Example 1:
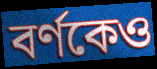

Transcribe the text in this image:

বর্ণকেও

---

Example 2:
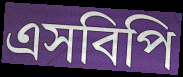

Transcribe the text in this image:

এসবিপি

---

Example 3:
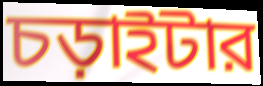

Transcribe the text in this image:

চড়াইটার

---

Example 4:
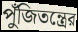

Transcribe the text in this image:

পুঁজিতন্ত্রের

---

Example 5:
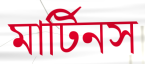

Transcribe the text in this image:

মার্টিনস